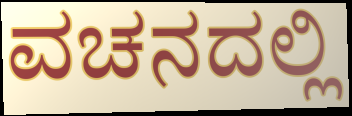
ವಚನದಲ್ಲಿ